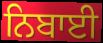
ਨਿਬਾਈ